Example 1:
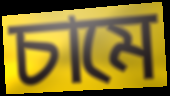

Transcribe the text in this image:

চামে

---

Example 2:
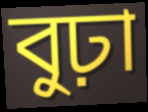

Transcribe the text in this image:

বুঢ়া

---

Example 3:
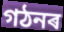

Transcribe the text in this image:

গঠনৰ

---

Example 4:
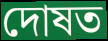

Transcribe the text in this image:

দোষত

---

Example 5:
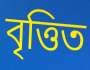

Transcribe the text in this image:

বৃত্তিত